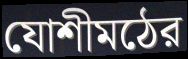
যোশীমঠের